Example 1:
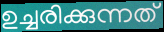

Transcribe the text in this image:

ഉച്ചരിക്കുന്നത്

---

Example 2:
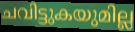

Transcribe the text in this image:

ചവിട്ടുകയുമില്ല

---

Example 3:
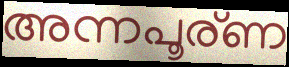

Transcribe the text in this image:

അന്നപൂര്ണ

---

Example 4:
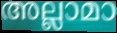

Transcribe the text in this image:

അല്ലാമാ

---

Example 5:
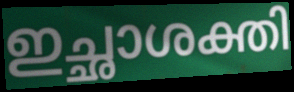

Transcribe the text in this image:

ഇച്ഛാശക്തി